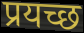
प्रयच्छ